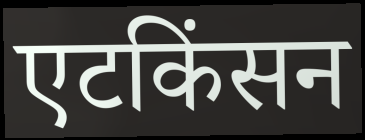
एटकिंसन